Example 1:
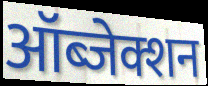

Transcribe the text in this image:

ऑब्‍जेक्‍शन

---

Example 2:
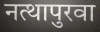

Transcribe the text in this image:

नत्थापुरवा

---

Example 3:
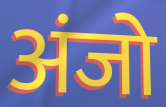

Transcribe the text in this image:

अंजो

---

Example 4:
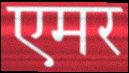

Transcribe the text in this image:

एमर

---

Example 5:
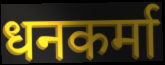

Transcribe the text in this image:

धनकर्मा